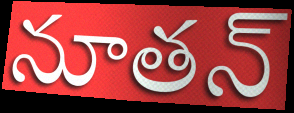
నూతన్